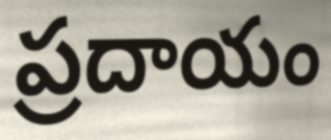
ప్రదాయం